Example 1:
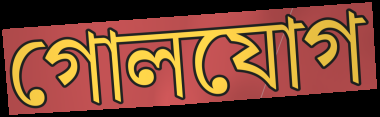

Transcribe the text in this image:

গোলযোগ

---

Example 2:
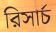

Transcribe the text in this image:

রিসার্চ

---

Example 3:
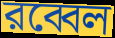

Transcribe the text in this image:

রব্বেল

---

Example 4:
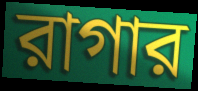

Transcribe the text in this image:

রাগার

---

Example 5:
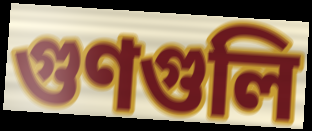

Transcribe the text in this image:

গুণগুলি